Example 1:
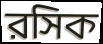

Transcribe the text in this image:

রসিক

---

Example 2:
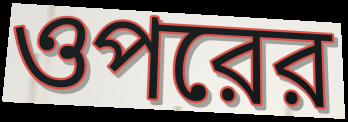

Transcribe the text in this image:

ওপরের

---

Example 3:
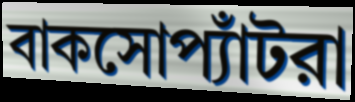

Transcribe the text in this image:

বাকসোপ্যাঁটরা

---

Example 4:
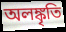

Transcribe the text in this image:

অলঙ্কৃতি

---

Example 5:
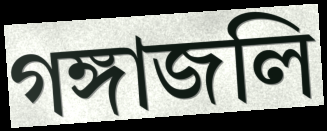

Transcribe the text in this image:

গঙ্গাজলি